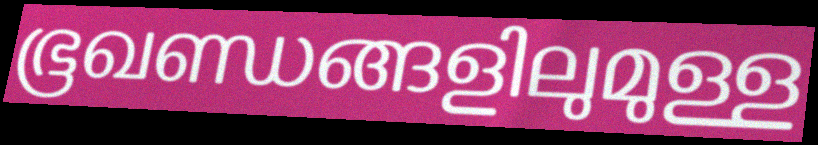
ഭൂഖണ്ഡങ്ങളിലുമുള്ള